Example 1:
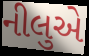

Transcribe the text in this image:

નીલુએ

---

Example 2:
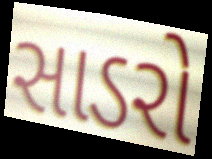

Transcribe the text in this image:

સાડરો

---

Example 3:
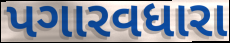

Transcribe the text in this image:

પગારવધારા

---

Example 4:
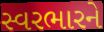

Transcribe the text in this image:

સ્વરભારને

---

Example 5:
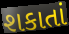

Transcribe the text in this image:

શકાતાં